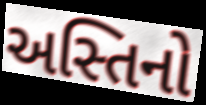
અસ્તિનો